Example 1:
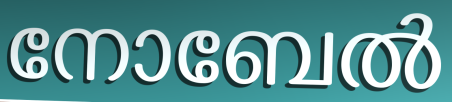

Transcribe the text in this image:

നോബേൽ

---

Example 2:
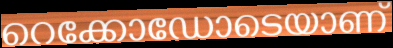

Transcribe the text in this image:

റെക്കോഡോടെയാണ്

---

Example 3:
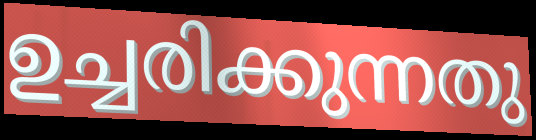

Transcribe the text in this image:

ഉച്ചരിക്കുന്നതു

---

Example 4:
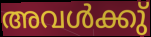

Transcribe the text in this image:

അവൾക്കു്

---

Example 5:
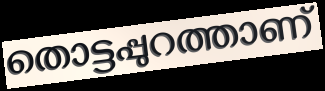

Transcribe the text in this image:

തൊട്ടപ്പുറത്താണ്